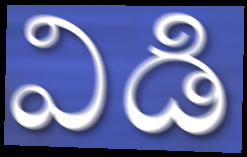
విడి